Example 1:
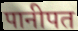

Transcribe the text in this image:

पानीपत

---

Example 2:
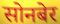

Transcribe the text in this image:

सोनबेर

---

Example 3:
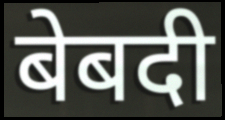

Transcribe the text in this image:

बेबदी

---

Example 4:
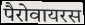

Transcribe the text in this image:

पैरोवायरस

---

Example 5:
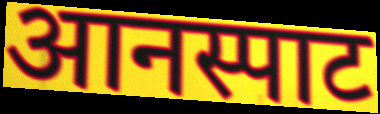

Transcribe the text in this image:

आनस्पाट